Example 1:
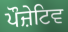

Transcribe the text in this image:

ਪੌਜ਼ੇਟਿਵ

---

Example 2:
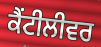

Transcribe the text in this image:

ਕੈਂਟੀਲੀਵਰ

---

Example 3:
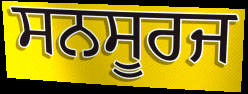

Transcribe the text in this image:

ਸਨਸੂਰਜ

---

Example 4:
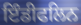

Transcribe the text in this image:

ਇੰਡੀਫਲਿਨ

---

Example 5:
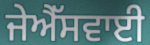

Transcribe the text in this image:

ਜੇਐੱਸਵਾਈ